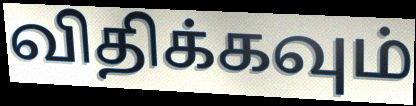
விதிக்கவும்